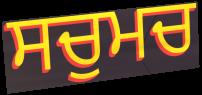
ਸਚੁਮਚ